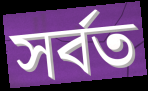
সর্বত